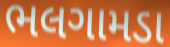
ભલગામડા